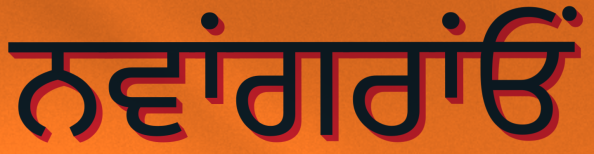
ਨਵਾਂਗਰਾਂਓਂ